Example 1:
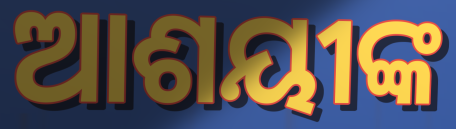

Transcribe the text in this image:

ଆଶୟୀଙ୍କ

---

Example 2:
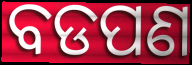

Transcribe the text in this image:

ବଡପଣ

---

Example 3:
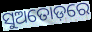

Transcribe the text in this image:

ସୁଅତୋଡ଼ରେ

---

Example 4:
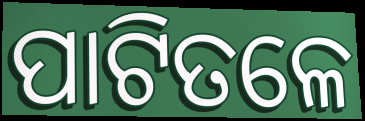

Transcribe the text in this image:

ପାଟିତଳେ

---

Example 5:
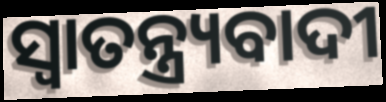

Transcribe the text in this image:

ସ୍ୱାତନ୍ତ୍ର୍ୟବାଦୀ